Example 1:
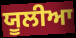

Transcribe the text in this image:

ਯੂਲੀਆ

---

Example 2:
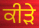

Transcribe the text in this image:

ਕੀੜੇ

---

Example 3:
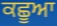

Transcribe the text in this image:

ਕਛੂਆ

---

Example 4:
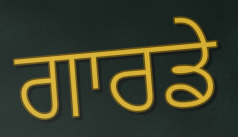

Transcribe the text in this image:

ਗਾਰਡੇ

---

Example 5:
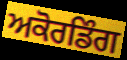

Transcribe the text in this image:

ਅਕੋਰਡਿੰਗ